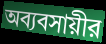
অব্যবসায়ীর